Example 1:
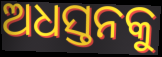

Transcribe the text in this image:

ଅଧସ୍ତନକୁ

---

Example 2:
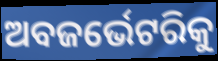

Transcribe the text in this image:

ଅବଜର୍ଭେଟରିକୁ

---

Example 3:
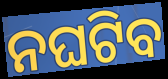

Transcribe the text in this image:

ନଘଟିବ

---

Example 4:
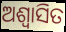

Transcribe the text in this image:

ଅଶ୍ୱାସିତ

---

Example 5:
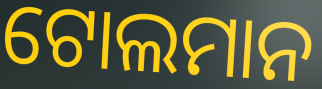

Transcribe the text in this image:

ଟୋଲମାନ